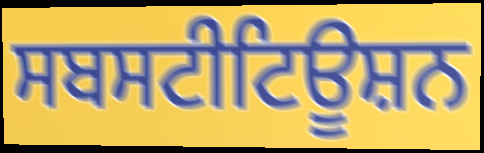
ਸਬਸਟੀਟਿਊਸ਼ਨ